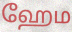
ஹேம